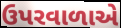
ઉપરવાળાએ